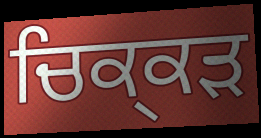
ਚਿਕ੍ਕੜ